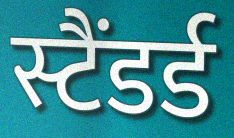
स्‍टैंडर्ड